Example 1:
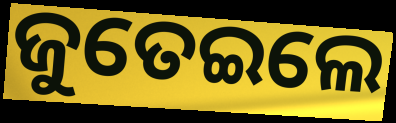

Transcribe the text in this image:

ଜୁତେଇଲେ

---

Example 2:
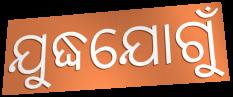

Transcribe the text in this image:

ଯୁଦ୍ଧଯୋଗୁଁ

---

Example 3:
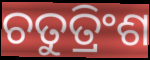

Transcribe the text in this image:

ଚତୁତ୍ରିଂଶ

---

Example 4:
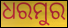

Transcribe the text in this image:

ଧରମୁର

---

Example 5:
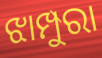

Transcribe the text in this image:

ଝାମ୍ପୁରା